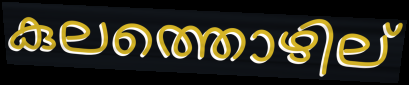
കുലത്തൊഴില്